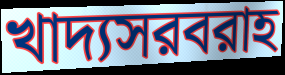
খাদ্যসরবরাহ